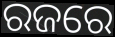
ରଜରେ